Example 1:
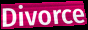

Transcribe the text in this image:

Divorce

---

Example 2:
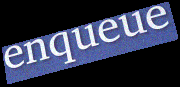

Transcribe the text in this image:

enqueue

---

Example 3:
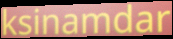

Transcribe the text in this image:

ksinamdar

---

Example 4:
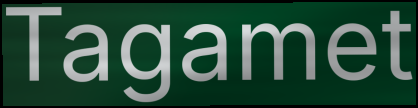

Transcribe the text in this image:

Tagamet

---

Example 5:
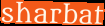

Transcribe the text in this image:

sharbat